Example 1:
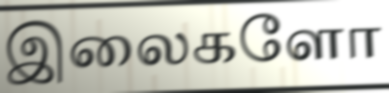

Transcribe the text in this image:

இலைகளோ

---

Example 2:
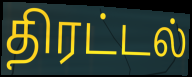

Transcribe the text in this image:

திரட்டல்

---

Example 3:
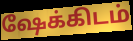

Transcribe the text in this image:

ஷேக்கிடம்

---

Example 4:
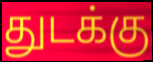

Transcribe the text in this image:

துடக்கு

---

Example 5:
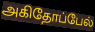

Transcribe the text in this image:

அகிதோப்பேல்